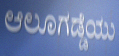
ಆಲೂಗಡ್ಡೆಯು